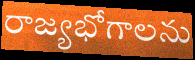
రాజ్యభోగాలను